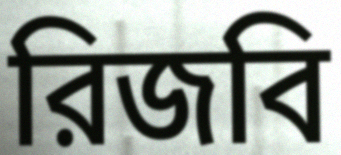
রিজবি